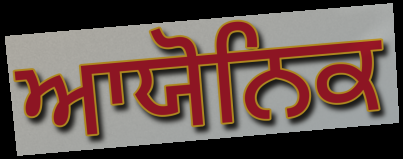
ਆਯੋਨਿਕ